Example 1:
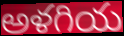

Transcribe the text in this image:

అళగియ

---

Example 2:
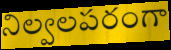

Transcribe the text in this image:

నిల్వలపరంగా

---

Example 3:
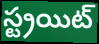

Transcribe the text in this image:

స్ట్రయిట్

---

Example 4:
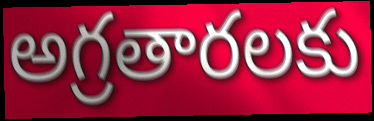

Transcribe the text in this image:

అగ్రతారలకు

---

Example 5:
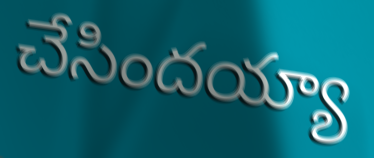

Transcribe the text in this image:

చేసిందయ్యా